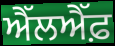
ਐੱਲਐੱਫ਼